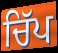
ਚਿੱਪ